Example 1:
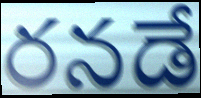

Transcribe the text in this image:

రనడే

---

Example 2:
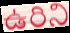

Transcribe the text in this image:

ఉరిని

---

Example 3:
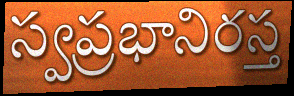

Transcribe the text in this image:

స్వప్రభానిరస్త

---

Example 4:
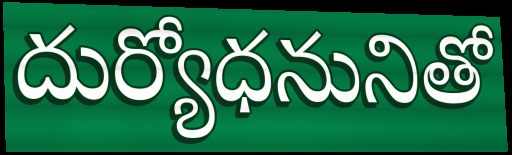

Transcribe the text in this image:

దుర్యోధనునితో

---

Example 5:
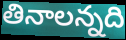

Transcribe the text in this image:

తినాలన్నది